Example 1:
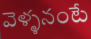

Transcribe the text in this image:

వెళ్ళనంటే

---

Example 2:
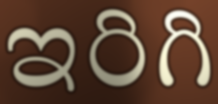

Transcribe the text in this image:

ఇరిగి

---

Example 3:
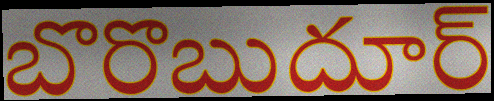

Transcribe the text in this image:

బొరొబుదూర్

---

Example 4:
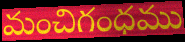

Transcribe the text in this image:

మంచిగంధము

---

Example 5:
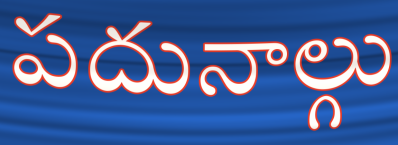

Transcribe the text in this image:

పదునాల్గు